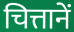
चित्तानें